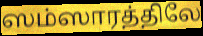
ஸம்ஸாரத்திலே